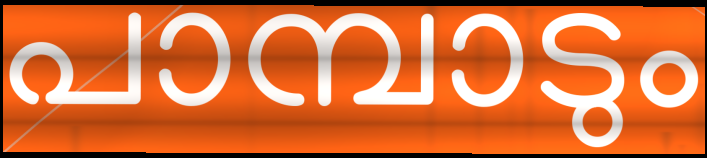
പാമ്പാടും